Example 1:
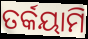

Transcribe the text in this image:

ତର୍କୟାମି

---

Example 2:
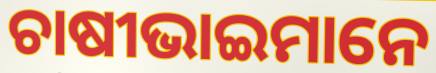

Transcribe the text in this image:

ଚାଷୀଭାଇମାନେ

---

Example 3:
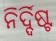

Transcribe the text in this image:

ନିର୍ଦ୍ଦିଷ୍ଟ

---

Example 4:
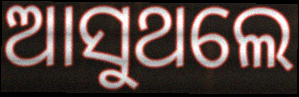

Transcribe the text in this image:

ଆସୁଥଲେ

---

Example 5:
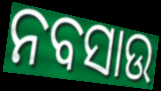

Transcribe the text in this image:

ନବସାଉ